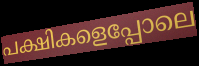
പക്ഷികളെപ്പോലെ